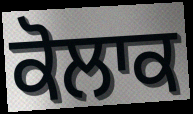
ਕੋਲਾਕ